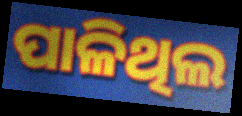
ପାଳିଥିଲ